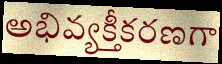
అభివ్యక్తీకరణగా